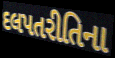
દલપતરીતિના